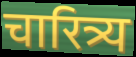
चारित्र्य